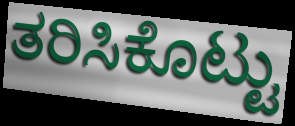
ತರಿಸಿಕೊಟ್ಟು